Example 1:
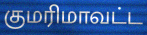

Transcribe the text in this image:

குமரிமாவட்ட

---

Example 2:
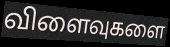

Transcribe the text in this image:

விளைவுகளை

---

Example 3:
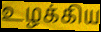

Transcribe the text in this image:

உழக்கிய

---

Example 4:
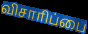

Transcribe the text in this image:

விசாரிப்பை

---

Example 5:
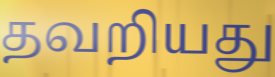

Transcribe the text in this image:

தவறியது